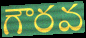
గౌరవ